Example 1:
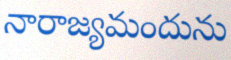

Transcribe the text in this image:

నారాజ్యమందును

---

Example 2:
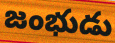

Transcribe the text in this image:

జంభుడు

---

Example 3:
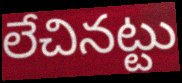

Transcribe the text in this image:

లేచినట్టు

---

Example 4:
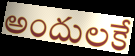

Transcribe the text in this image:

అందులకే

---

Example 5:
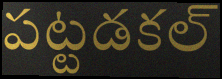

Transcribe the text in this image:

పట్టడకల్